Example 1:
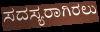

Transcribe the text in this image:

ಸದಸ್ಯರಾಗಿರಲು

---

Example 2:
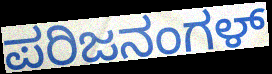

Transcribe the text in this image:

ಪರಿಜನಂಗಳ್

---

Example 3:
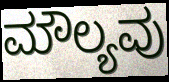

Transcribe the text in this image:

ಮೌಲ್ಯವು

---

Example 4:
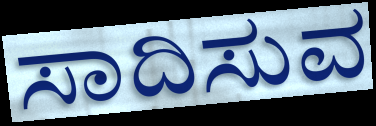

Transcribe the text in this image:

ಸಾದಿಸುವ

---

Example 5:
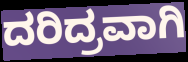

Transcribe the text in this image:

ದರಿದ್ರವಾಗಿ